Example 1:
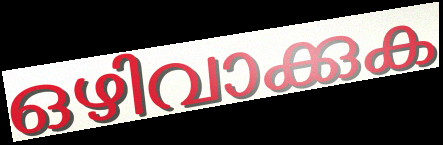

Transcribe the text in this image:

ഒഴിവാക്കുക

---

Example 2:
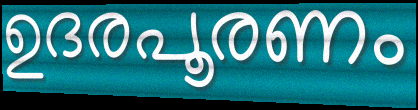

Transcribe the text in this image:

ഉദരപൂരണം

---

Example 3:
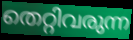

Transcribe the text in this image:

തെറ്റിവരുന്ന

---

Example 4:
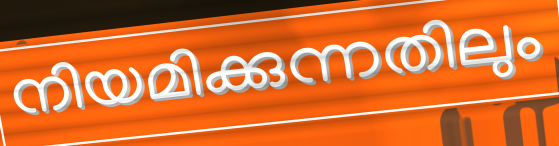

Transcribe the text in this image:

നിയമിക്കുന്നതിലും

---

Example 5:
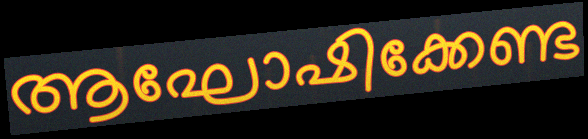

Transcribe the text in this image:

ആഘോഷിക്കേണ്ട